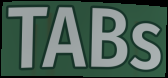
TABs